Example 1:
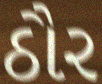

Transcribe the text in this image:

ઠૌર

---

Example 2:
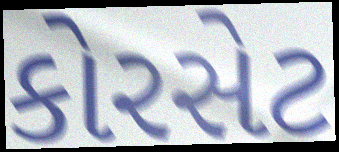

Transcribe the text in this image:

કોરસેટ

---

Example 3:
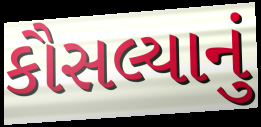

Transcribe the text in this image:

કૌસલ્યાનું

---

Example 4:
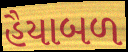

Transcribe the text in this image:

હૈયાબળ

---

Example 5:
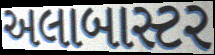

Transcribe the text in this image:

અલાબાસ્ટર